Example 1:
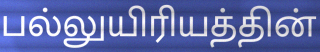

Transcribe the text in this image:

பல்லுயிரியத்தின்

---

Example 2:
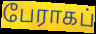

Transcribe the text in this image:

பேராகப்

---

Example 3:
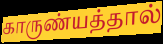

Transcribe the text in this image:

காருண்யத்தால்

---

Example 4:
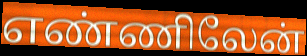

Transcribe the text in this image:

எண்ணிலேன்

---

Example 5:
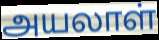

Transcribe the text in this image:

அயலாள்